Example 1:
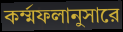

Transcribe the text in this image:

কর্ম্মফলানুসারে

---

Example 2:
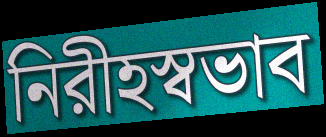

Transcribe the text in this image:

নিরীহস্বভাব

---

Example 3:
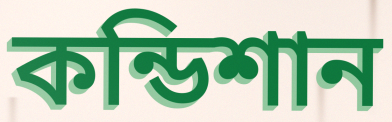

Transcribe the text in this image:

কন্ডিশান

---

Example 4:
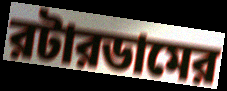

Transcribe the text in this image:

রটারডামের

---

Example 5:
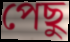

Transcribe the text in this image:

পেছু